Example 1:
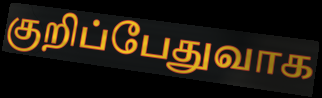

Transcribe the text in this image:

குறிப்பேதுவாக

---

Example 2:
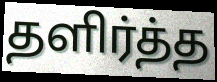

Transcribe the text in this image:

தளிர்த்த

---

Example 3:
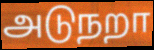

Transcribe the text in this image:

அடுநறா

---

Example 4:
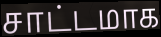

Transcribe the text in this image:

சாட்டமாக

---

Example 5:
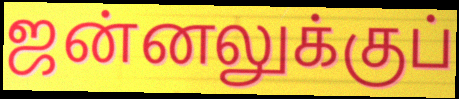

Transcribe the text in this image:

ஜன்னலுக்குப்